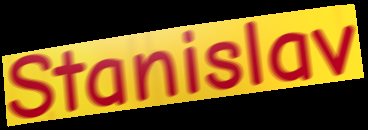
Stanislav